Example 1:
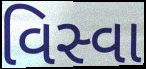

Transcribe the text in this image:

વિસ્વા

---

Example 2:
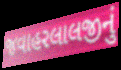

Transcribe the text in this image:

જવાહરલાલજીનું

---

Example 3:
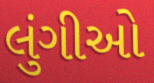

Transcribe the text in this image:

લુંગીઓ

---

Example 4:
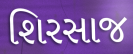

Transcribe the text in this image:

શિરસાજ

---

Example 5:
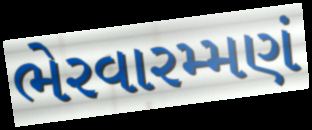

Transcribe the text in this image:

ભેરવારમ્મણં